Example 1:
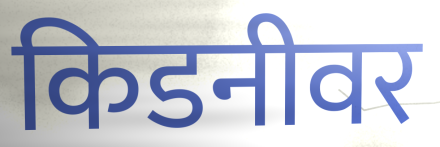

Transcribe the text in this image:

किडनीवर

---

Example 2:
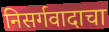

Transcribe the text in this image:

निसर्गवादाचा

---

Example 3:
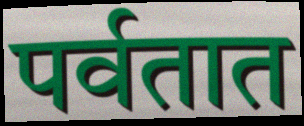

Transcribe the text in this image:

पर्वतात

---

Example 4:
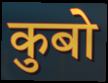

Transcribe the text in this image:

कुबो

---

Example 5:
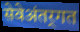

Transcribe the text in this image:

सेवेअंतर्गत